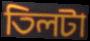
তিলটা